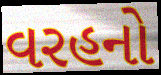
વરહનો